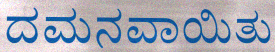
ದಮನವಾಯಿತು